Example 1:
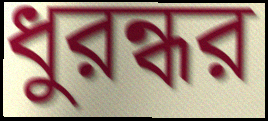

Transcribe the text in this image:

ধুরন্ধর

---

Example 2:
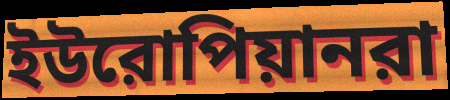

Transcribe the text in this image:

ইউরোপিয়ানরা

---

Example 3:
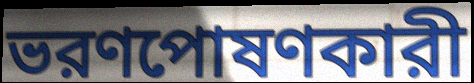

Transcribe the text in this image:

ভরণপোষণকারী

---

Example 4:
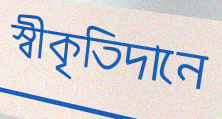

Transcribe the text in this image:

স্বীকৃতিদানে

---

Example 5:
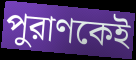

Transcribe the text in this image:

পুরাণকেই